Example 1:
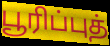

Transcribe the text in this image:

பூரிப்புத்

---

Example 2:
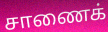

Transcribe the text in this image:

சாணைக்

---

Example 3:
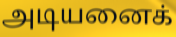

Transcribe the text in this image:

அடியனைக்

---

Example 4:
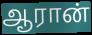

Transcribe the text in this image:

ஆரான்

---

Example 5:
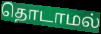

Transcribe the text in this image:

தொடாமல்